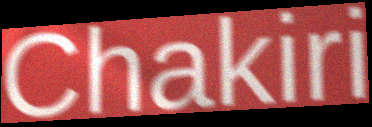
Chakiri